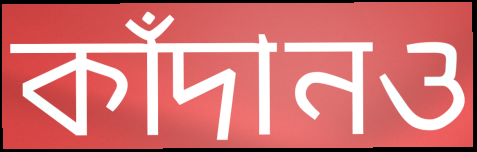
কাঁদানও